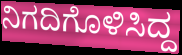
ನಿಗದಿಗೊಳಿಸಿದ್ದ